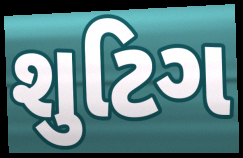
શુટિગ